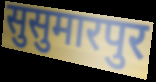
सुसुमारपुर